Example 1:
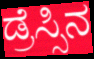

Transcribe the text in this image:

ಡ್ರೆಸ್ಸಿನ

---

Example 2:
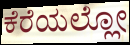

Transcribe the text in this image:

ಕೆರೆಯಲ್ಲೋ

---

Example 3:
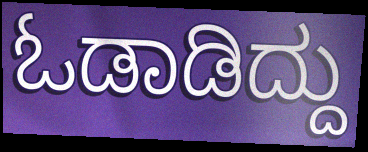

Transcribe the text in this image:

ಓಡಾಡಿದ್ದು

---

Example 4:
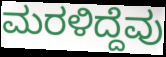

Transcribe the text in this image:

ಮರಳಿದ್ದೆವು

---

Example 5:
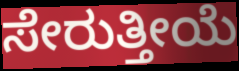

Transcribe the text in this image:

ಸೇರುತ್ತೀಯೆ